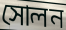
সোলন